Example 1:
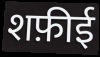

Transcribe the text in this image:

शफ़ीई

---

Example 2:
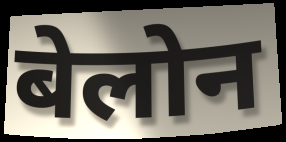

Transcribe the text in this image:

बेलोन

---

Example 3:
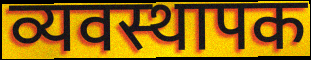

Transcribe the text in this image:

व्यवस्थापक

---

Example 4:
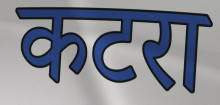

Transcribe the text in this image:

कटरा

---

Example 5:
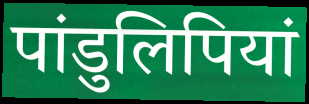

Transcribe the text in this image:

पांडुलिपियां